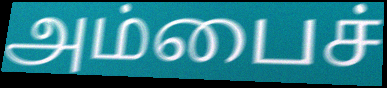
அம்பைச்